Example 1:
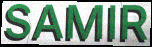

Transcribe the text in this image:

SAMIR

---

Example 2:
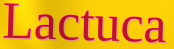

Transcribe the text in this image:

Lactuca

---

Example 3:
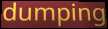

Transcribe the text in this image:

dumping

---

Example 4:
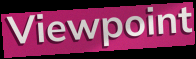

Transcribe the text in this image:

Viewpoint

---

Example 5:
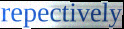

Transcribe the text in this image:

repectively